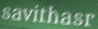
savithasr